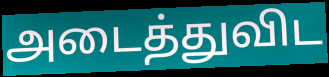
அடைத்துவிட